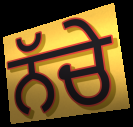
ਨੱਚੇ